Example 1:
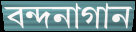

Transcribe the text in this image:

বন্দনাগান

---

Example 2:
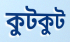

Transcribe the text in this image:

কুটকুট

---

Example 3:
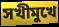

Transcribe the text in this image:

সখীমুখে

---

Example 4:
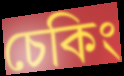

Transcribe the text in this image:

চেকিং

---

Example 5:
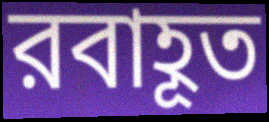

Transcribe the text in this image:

রবাহূত